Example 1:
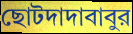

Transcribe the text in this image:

ছোটদাদাবাবুর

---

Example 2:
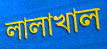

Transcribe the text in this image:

লালাখাল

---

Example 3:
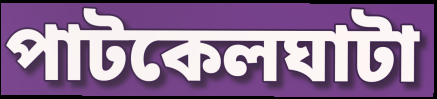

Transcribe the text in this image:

পাটকেলঘাটা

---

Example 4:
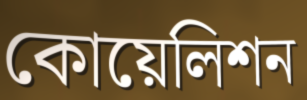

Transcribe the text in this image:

কোয়েলিশন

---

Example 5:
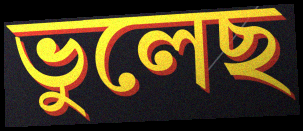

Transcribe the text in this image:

ভুলেছ